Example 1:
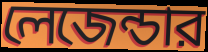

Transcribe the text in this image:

লেজেন্ডার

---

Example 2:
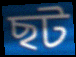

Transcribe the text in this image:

ছট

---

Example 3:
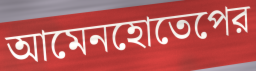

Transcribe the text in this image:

আমেনহোতেপের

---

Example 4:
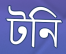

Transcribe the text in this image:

টনি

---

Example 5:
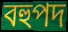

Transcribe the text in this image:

বহুপদ